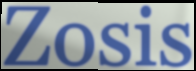
Zosis